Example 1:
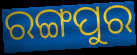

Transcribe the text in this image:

ରଙ୍ଗପୁର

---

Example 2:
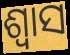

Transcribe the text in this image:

ଶ୍ୱାସ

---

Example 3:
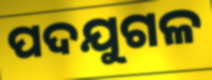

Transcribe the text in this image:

ପଦଯୁଗଳ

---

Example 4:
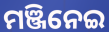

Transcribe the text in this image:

ମଞ୍ଜିନେଇ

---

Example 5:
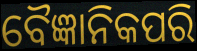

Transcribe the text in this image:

ବୈଜ୍ଞାନିକପରି